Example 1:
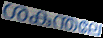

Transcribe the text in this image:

ശകുന്തലേ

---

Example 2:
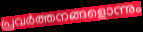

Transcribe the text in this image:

പ്രവർത്തനങ്ങളൊന്നും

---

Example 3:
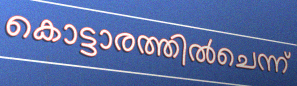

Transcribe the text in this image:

കൊട്ടാരത്തിൽചെന്ന്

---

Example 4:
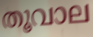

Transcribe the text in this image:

തൂവാല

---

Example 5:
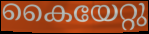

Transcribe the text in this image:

കൈയേറ്റു